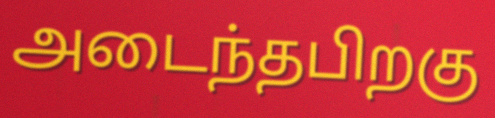
அடைந்தபிறகு